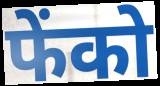
फेंको